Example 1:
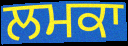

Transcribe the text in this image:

ਲਮਕਾ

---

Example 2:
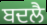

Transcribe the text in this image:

ਬਦਲੈ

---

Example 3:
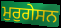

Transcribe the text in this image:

ਮੁਰੁਗੇਸਨ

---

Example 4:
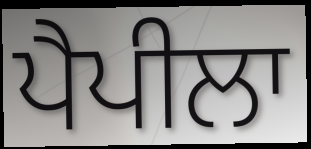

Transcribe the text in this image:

ਪੈਪੀਲਾ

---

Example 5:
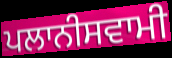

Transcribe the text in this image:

ਪਲਾਨੀਸਵਾਮੀ